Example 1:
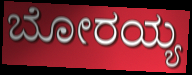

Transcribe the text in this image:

ಬೋರಯ್ಯ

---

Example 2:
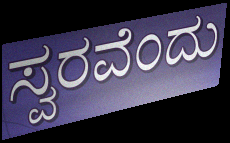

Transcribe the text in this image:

ಸ್ವರವೆಂದು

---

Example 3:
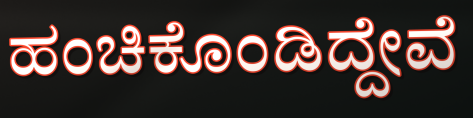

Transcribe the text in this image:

ಹಂಚಿಕೊಂಡಿದ್ದೇವೆ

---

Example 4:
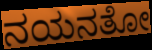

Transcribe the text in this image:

ನಯನತೋ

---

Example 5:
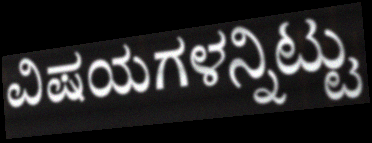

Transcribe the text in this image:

ವಿಷಯಗಳನ್ನಿಟ್ಟು